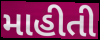
માહીતી